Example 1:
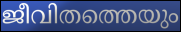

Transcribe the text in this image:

ജീവിതത്തെയും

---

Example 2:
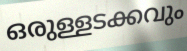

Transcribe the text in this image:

ഒരുള്ളടക്കവും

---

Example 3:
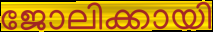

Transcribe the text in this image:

ജോലിക്കായി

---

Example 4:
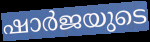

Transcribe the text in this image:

ഷാർജയുടെ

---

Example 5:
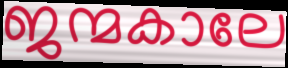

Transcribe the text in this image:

ജന്മകാലേ